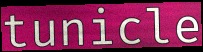
tunicle